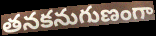
తనకనుగుణంగా